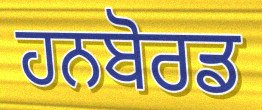
ਹਨਬੋਰਡ